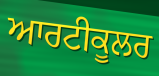
ਆਰਟੀਕੂਲਰ